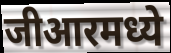
जीआरमध्ये